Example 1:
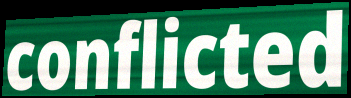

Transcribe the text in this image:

conflicted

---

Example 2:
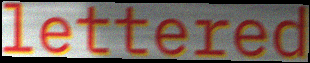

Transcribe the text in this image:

lettered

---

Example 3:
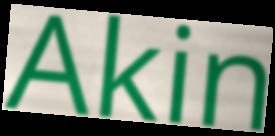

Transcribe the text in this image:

Akin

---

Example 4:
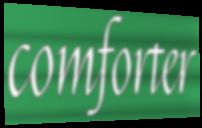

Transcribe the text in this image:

comforter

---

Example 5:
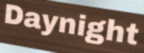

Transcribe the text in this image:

Daynight